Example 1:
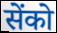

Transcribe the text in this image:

सेंको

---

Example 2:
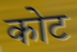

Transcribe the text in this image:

कोट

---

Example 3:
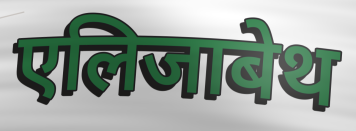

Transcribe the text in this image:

एलिजाबेथ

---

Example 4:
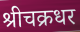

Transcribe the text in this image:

श्रीचक्रधर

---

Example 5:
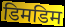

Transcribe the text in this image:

डिमडिम